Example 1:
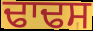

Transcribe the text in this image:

ਢਾਢਸ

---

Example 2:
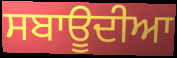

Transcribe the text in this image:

ਸਬਾਊਦੀਆ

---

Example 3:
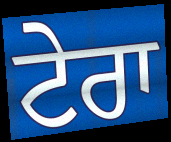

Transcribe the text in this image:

ਟੇਰਾ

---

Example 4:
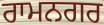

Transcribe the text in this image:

ਰਾਮਨਗਰ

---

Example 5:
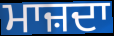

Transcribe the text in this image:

ਮਾਜ਼ਦਾ